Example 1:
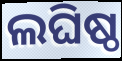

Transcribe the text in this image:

ଲଘିଷ୍ଠ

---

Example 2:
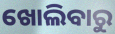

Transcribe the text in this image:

ଖୋଲିବାରୁ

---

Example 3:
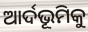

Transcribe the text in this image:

ଆର୍ଦଭୂମିକୁ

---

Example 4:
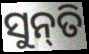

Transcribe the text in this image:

ସୁନ୍‌ତି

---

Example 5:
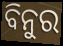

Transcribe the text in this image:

ବିନୁର